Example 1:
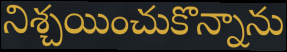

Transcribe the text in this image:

నిశ్చయించుకొన్నాను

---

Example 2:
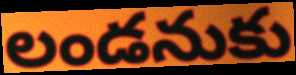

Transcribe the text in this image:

లండనుకు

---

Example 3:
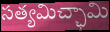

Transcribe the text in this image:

సత్యమిచ్ఛామి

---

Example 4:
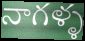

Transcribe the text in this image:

నాగళ్ళ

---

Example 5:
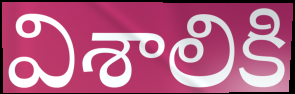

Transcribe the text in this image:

విశాలికి